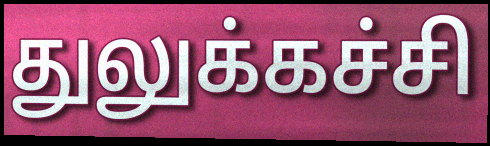
துலுக்கச்சி